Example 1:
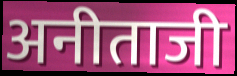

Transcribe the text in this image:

अनीताजी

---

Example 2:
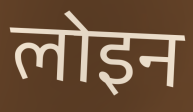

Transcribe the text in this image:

लोइन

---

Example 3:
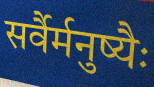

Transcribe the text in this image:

सर्वैर्मनुष्यैः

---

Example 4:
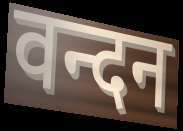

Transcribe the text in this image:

वन्दन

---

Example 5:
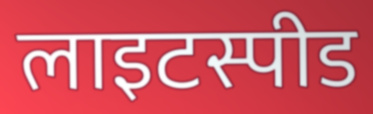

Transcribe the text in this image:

लाइटस्पीड